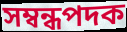
সম্বন্ধপদক